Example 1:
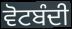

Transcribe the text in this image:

ਵੋਟਬੰਦੀ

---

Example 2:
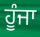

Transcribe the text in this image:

ਹੂੰਜਾ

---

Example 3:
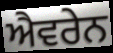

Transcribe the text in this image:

ਐਵਰੇਨ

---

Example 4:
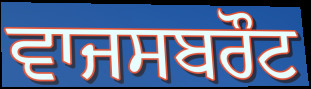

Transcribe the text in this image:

ਵਾਜਸਬਰੌਟ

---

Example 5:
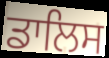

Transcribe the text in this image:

ਡਾਲਿਸ